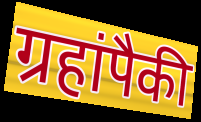
ग्रहांपैकी